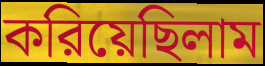
করিয়েছিলাম